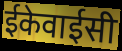
ईकेवाईसी